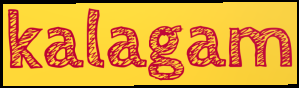
kalagam